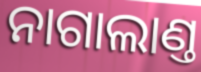
ନାଗାଲାଣ୍ତ